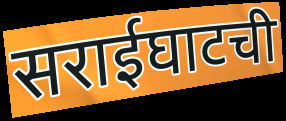
सराईघाटची